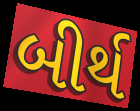
બીર્થ